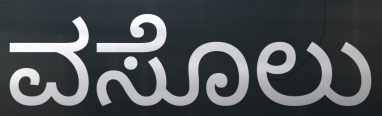
ವಸೊಲು